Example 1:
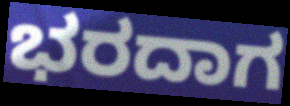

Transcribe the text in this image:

ಭರದಾಗ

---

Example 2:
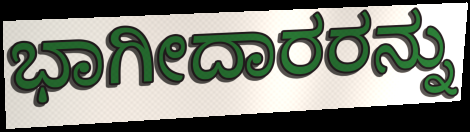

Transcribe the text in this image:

ಭಾಗೀದಾರರನ್ನು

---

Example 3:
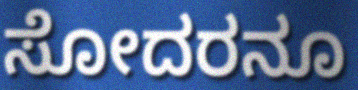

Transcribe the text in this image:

ಸೋದರನೂ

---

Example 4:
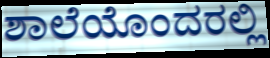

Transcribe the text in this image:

ಶಾಲೆಯೊಂದರಲ್ಲಿ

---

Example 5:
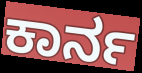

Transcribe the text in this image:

ಕಾರ್ನ